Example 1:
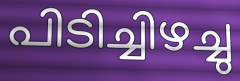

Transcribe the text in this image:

പിടിച്ചിഴച്ചു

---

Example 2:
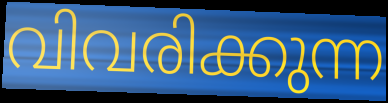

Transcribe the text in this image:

വിവരിക്കുന്ന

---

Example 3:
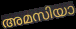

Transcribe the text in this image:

അമസിയാ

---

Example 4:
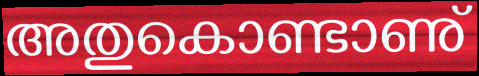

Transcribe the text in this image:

അതുകൊണ്ടാണു്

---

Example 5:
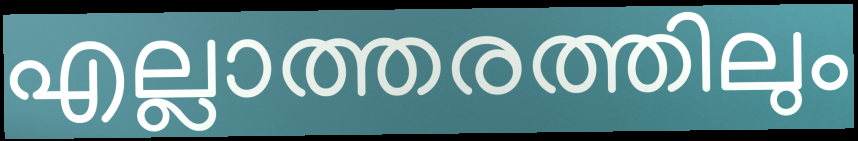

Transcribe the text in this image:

എല്ലാത്തരത്തിലും